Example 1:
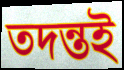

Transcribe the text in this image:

তদন্তই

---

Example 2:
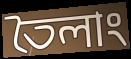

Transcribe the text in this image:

তৈলাং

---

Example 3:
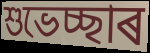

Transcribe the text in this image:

শুভেচ্ছাৰ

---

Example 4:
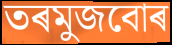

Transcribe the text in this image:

তৰমুজবোৰ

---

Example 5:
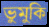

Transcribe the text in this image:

ভুমুকি